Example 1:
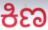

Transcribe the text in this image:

ಕಿಣ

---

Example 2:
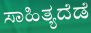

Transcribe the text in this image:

ಸಾಹಿತ್ಯದೆಡೆ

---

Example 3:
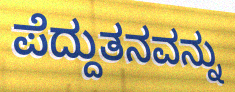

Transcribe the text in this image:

ಪೆದ್ದುತನವನ್ನು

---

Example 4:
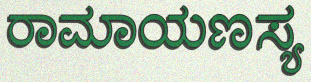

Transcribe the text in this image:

ರಾಮಾಯಣಸ್ಯ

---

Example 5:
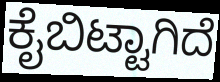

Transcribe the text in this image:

ಕೈಬಿಟ್ಟಾಗಿದೆ